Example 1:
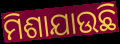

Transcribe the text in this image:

ମିଶାଯାଉଛି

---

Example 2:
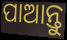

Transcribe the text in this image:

ପାଆନ୍ତୁ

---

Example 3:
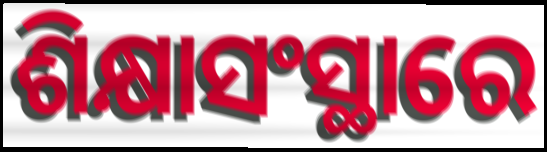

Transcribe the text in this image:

ଶିକ୍ଷାସଂସ୍ଥାରେ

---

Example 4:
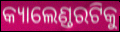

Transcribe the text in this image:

କ୍ୟାଲେଣ୍ଡରଟିକୁ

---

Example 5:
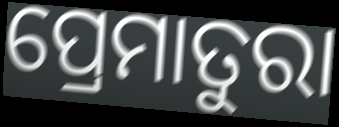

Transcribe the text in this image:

ପ୍ରେମାତୁରା